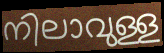
നിലാവുള്ള